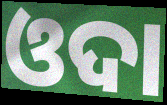
ଓଦା